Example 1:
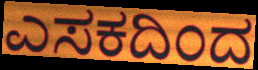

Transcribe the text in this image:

ಎಸಕದಿಂದ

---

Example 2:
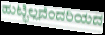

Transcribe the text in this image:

ಹುಟ್ಟಿಲ್ಲವೆಂದರಿಯದ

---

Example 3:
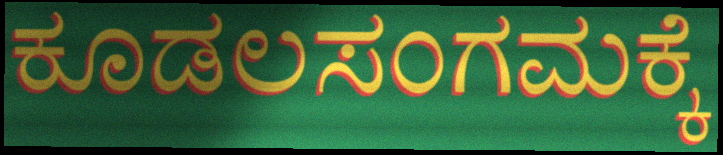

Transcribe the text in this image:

ಕೂಡಲಸಂಗಮಕ್ಕೆ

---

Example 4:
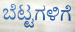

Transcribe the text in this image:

ಬೆಟ್ಟಗಳಿಗೆ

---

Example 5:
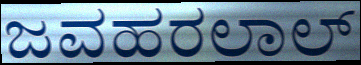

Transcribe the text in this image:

ಜವಹರಲಾಲ್